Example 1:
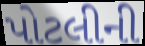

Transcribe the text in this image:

પોટલીની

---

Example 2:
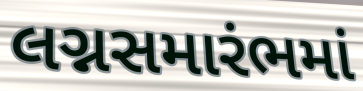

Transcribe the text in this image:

લગ્નસમારંભમાં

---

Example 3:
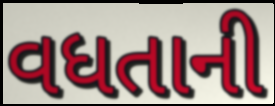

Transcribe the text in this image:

વધતાની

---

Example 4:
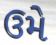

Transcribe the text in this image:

ઉમે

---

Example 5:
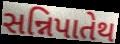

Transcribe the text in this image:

સન્નિપાતેથ